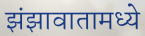
झंझावातामध्ये